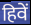
हिवें